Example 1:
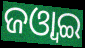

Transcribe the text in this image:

ଜଓ୍ବାଇ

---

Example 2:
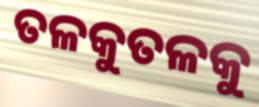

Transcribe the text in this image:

ତଳକୁତଳକୁ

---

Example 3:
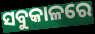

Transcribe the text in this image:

ସବୁକାଳରେ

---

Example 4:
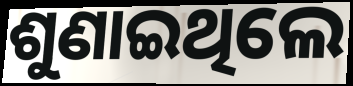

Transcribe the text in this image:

ଶୁଣାଇଥିଲେ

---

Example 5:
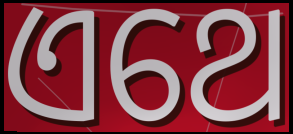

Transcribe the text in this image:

ଏଥେ